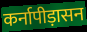
कर्नापीड़ासन